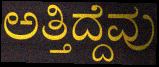
ಅತ್ತಿದ್ದೆವು